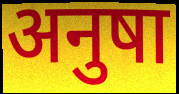
अनुषा